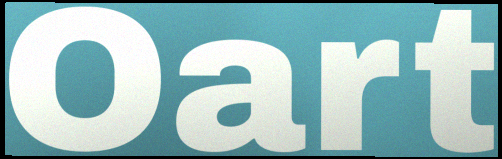
Oart